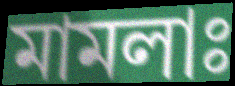
মামলাঃ